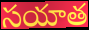
సయాత